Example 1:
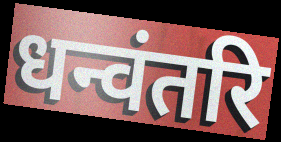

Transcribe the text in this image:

धन्वंतरि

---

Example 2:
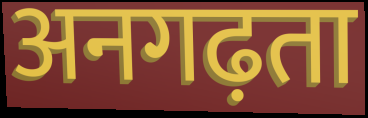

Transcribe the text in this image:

अनगढ़ता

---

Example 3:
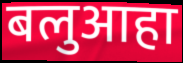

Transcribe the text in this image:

बलुआहा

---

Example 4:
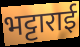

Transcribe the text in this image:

भट्टाराई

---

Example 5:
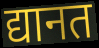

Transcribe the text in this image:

द्यानत